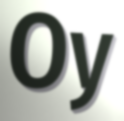
Oy